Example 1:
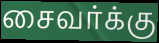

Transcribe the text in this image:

சைவர்க்கு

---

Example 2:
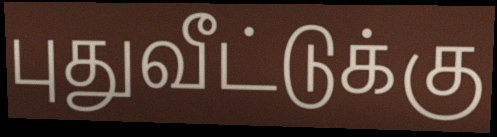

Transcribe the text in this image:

புதுவீட்டுக்கு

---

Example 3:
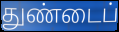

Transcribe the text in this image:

துண்டைப்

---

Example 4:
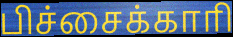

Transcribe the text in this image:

பிச்சைக்காரி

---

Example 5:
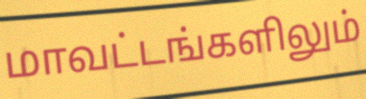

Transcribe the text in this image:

மாவட்டங்களிலும்